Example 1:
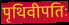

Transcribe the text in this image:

पृथिवीपतिः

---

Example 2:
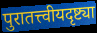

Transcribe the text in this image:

पुरातत्त्वीयदृष्ट्या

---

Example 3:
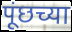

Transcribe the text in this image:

पूंछच्या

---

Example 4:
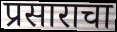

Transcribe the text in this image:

प्रसाराचा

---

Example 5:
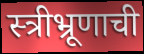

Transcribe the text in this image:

स्त्रीभ्रूणाची